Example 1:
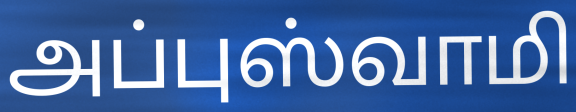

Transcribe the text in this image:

அப்புஸ்வாமி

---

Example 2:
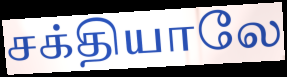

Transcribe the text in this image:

சக்தியாலே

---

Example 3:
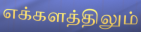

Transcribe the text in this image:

எக்களத்திலும்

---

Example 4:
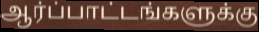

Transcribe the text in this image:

ஆர்ப்பாட்டங்களுக்கு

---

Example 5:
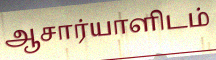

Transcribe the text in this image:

ஆசார்யாளிடம்